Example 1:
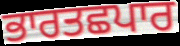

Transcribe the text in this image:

ਭਾਰਤਛਪਾਰ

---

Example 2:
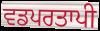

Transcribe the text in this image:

ਵਡਪਰਤਾਪੀ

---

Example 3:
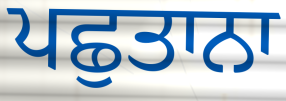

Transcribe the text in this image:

ਪਛੁਤਾਨਾ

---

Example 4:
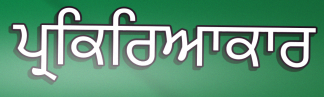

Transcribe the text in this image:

ਪ੍ਰਕਿਰਿਆਕਾਰ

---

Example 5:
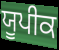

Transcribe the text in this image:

ਯੂਪੀਕ